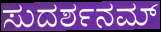
ಸುದರ್ಶನಮ್